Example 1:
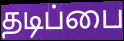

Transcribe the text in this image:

தடிப்பை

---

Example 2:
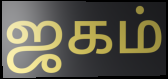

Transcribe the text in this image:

ஜகம்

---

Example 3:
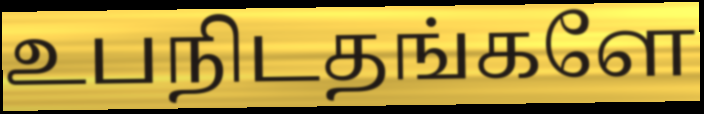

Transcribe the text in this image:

உபநிடதங்களே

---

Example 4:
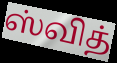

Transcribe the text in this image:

ஸ்வித்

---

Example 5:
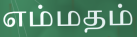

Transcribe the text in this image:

எம்மதம்